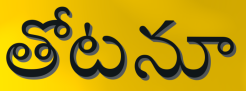
తోటనూ